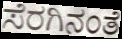
ಸೆರಗಿನಂತೆ